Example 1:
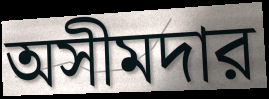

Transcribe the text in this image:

অসীমদার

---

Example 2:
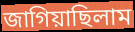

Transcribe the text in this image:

জাগিয়াছিলাম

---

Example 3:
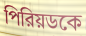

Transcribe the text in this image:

পিরিয়ডকে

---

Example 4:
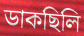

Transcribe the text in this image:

ডাকছিলি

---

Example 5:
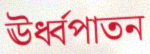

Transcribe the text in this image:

ঊর্ধ্বপাতন